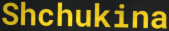
Shchukina